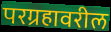
परग्रहावरील